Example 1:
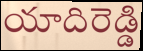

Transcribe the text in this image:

యాదిరెడ్డి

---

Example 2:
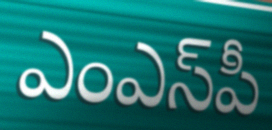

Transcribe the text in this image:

ఎంఎస్‌పీ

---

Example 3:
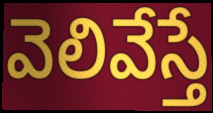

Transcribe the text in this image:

వెలివేస్తే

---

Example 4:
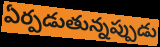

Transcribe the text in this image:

ఏర్పడుతున్నప్పుడు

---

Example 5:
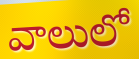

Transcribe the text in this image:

వాలులో